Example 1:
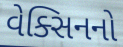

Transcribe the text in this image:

વેક્સિનનો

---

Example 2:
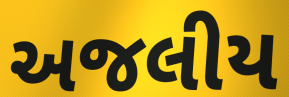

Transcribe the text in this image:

અજલીય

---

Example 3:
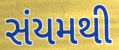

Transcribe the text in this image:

સંયમથી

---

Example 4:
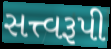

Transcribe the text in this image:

સત્ત્વરૂપી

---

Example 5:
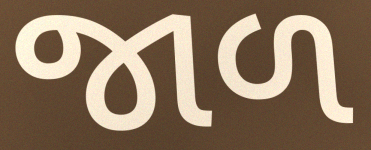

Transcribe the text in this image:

જાળ